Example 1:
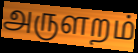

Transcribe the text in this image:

அருளறம்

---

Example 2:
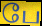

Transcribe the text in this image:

பே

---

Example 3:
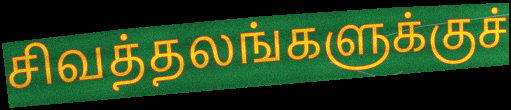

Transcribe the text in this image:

சிவத்தலங்களுக்குச்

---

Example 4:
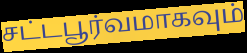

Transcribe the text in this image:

சட்டபூர்வமாகவும்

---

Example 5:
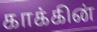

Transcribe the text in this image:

காக்கின்